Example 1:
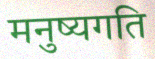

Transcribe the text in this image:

मनुष्यगति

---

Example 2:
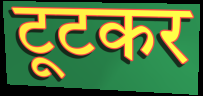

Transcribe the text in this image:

टूटकर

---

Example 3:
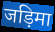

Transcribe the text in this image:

जड़िमा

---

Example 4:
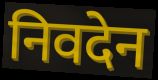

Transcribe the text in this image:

निवदेन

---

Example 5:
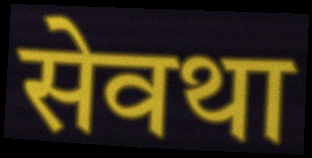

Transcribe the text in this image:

सेवथा